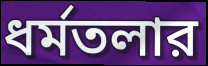
ধর্মতলার